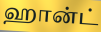
ஹான்ட்